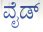
ವೈಡ್